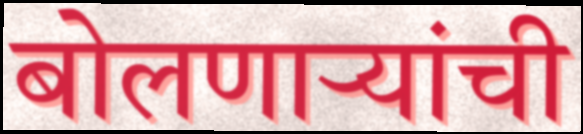
बोलणाऱ्यांची